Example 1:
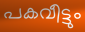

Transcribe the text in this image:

പകവീട്ടും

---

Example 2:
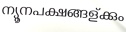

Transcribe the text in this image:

ന്യൂനപക്ഷങ്ങള്ക്കും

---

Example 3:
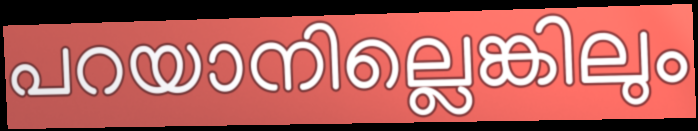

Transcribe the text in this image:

പറയാനില്ലെങ്കിലും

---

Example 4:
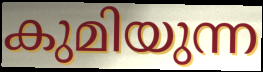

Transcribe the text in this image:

കുമിയുന്ന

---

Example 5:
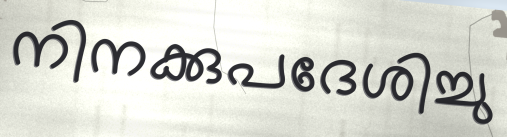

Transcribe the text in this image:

നിനക്കുപദേശിച്ചു